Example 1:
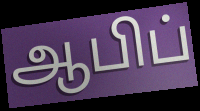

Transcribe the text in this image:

ஆபிப்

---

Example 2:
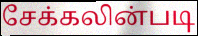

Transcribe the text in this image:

சேக்கலின்படி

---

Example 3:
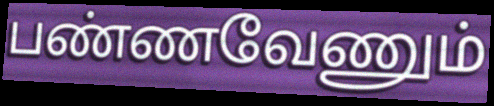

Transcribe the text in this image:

பண்ணவேணும்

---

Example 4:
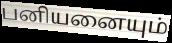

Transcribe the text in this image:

பனியனையும்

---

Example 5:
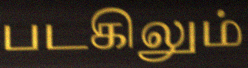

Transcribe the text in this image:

படகிலும்